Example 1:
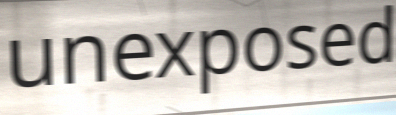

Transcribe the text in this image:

unexposed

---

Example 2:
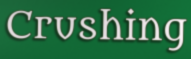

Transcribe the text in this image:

Crushing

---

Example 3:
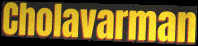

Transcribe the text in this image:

Cholavarman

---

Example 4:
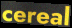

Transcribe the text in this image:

cereal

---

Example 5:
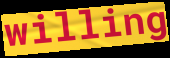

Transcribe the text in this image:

willing